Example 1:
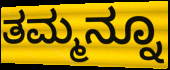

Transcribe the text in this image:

ತಮ್ಮನ್ನೂ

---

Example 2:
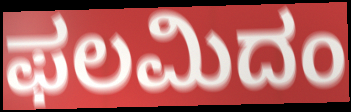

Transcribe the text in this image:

ಫಲಮಿದಂ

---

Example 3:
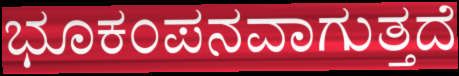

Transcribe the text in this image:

ಭೂಕಂಪನವಾಗುತ್ತದೆ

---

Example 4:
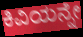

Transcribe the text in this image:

ಕಿವಿಯನ್ನೇ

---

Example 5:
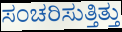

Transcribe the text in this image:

ಸಂಚರಿಸುತ್ತಿತ್ತು